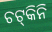
ଚଟ୍‍କିନି